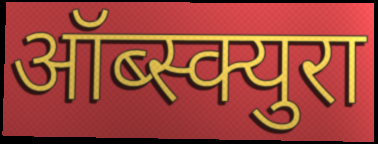
ऑब्स्क्युरा